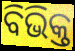
ବିଭିକ୍ତ